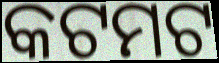
କଟମଟ